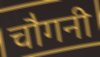
चौगनी